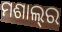
ମଶାଲ୍‌ର